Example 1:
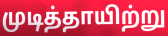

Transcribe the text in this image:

முடித்தாயிற்று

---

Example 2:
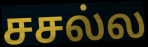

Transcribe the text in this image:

சசல்ல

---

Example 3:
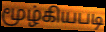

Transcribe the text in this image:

மூழ்கியபடி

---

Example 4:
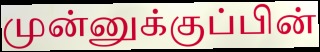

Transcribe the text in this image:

முன்னுக்குப்பின்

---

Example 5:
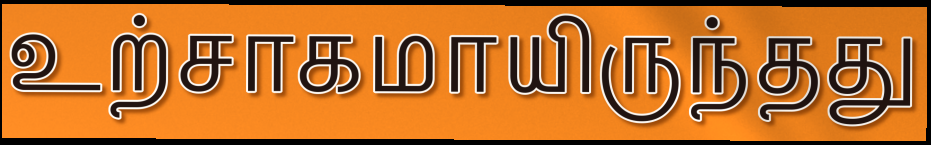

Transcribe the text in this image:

உற்சாகமாயிருந்தது